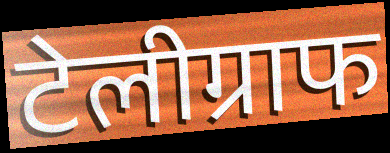
टेलीग्राफ